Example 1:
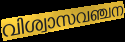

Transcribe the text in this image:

വിശ്വാസവഞ്ചന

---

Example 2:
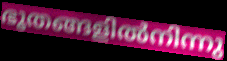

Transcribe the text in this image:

ഭൂതങ്ങളിൽനിന്നു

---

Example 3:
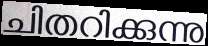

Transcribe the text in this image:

ചിതറിക്കുന്നു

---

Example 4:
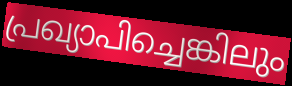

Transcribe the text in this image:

പ്രഖ്യാപിച്ചെങ്കിലും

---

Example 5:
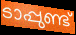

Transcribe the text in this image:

ടാപ്പുണ്ട്